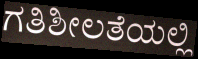
ಗತಿಶೀಲತೆಯಲ್ಲಿ